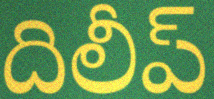
దిలీప్